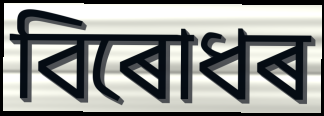
বিৰোধৰ